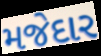
મજેદાર